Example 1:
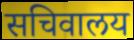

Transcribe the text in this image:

सचिवालय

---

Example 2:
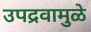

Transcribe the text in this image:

उपद्रवामुळे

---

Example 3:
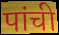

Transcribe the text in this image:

पांची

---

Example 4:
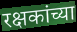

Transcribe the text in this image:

रक्षकांच्या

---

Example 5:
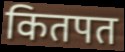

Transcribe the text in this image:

कितपत